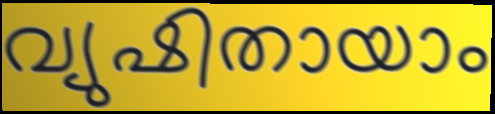
വ്യുഷിതായാം